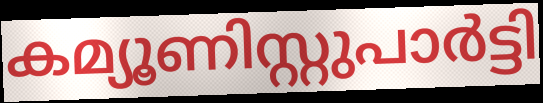
കമ്യൂണിസ്റ്റുപാർട്ടി